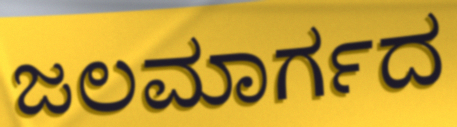
ಜಲಮಾರ್ಗದ